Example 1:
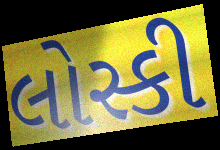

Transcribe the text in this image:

લોસ્કી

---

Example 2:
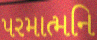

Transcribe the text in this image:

પરમાત્મનિ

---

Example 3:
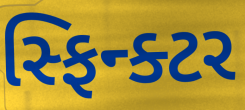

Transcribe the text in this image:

સ્ફિન્ક્ટર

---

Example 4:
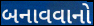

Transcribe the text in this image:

બનાવવાનો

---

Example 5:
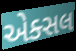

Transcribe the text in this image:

એક્સલ